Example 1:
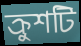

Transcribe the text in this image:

ক্রুশটি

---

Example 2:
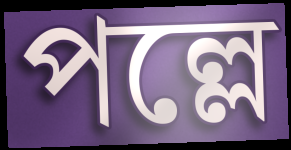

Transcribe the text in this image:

পল্লে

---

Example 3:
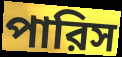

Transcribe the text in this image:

পারিস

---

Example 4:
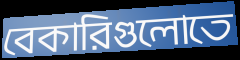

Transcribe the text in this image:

বেকারিগুলোতে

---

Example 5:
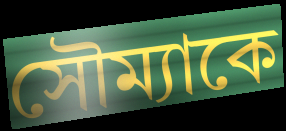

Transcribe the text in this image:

সৌম্যাকে